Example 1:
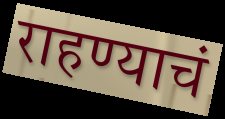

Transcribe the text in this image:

राहण्याचं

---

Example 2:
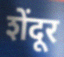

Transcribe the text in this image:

शेंदूर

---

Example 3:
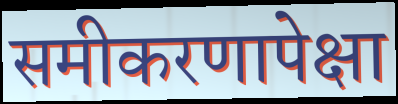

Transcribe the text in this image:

समीकरणापेक्षा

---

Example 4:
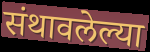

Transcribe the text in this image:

संथावलेल्या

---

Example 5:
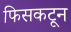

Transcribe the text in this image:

फिसकटून